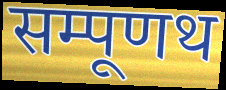
सम्पूणथ